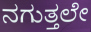
ನಗುತ್ತಲೇ